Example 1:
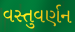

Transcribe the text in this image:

વસ્તુવર્ણન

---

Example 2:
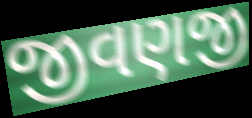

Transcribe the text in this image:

જીવણજી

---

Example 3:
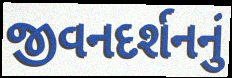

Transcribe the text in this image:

જીવનદર્શનનું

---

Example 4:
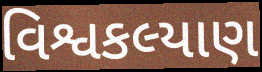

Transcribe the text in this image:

વિશ્વકલ્યાણ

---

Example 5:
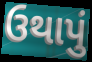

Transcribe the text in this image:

ઉથાપું